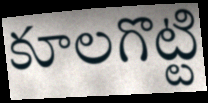
కూలగొట్టి